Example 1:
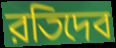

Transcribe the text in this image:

রতিদেব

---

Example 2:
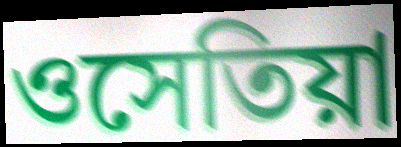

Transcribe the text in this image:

ওসেতিয়া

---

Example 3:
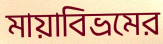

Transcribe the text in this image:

মায়াবিভ্রমের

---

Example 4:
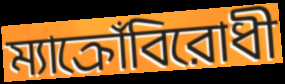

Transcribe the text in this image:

ম্যাক্রোঁবিরোধী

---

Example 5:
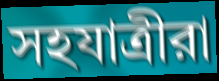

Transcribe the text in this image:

সহযাত্রীরা